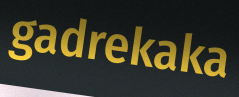
gadrekaka